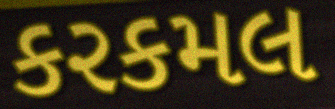
કરકમલ